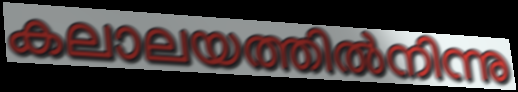
കലാലയത്തിൽനിന്നു